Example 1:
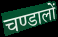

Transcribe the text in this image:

चण्डालों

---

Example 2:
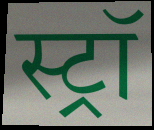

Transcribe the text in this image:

स्ट्रॉ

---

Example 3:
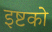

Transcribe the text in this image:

इष्टको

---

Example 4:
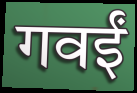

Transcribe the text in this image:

गवईं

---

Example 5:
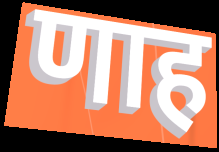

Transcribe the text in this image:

णाह